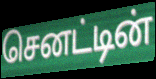
செனட்டின்